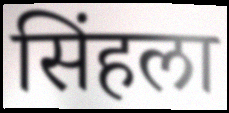
सिंहला